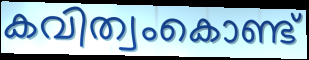
കവിത്വംകൊണ്ട്